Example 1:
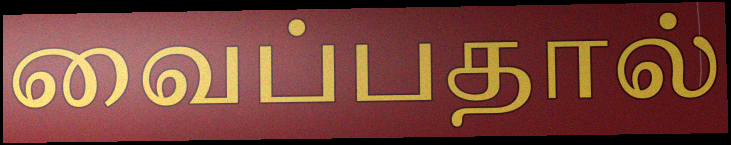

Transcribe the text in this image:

வைப்பதால்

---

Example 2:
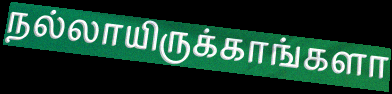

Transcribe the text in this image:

நல்லாயிருக்காங்களா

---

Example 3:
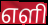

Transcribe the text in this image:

எளி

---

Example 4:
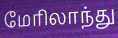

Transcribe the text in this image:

மேரிலாந்து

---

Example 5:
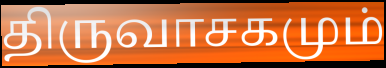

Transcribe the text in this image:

திருவாசகமும்